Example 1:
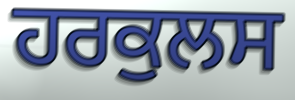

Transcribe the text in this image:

ਹਰਕੁਲਸ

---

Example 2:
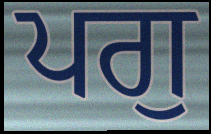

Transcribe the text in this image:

ਪਗੁ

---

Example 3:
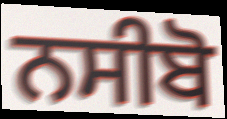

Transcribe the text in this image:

ਨਸੀਬੋ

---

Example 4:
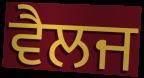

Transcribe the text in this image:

ਵੈਲਜ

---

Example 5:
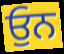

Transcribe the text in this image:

ਓੁਨ